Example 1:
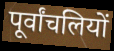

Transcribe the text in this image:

पूर्वांचलियों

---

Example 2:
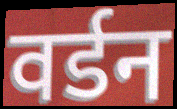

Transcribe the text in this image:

वर्डन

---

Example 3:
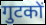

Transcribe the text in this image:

गुटकों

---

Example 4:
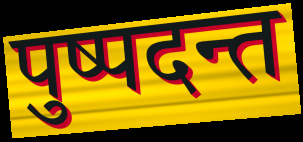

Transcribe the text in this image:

पुष्पदन्त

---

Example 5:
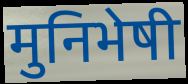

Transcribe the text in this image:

मुनिभेषी